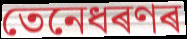
তেনেধৰণৰ